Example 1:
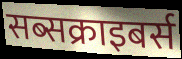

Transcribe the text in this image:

सब्सक्राइबर्स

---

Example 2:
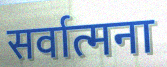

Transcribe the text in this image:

सर्वात्मना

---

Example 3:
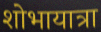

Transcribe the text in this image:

शोभायात्रा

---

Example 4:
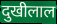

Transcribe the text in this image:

दुखीलाल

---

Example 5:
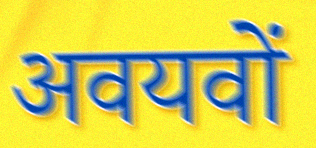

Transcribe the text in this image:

अवयवों